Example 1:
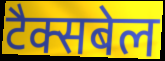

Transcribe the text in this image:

टैक्सबेल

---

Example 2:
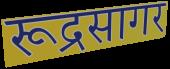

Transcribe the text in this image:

रूद्रसागर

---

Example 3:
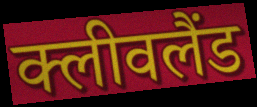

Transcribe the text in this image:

क्लीवलैंड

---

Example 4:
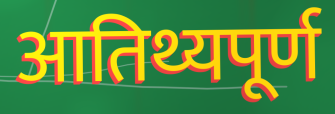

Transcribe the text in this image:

आतिथ्यपूर्ण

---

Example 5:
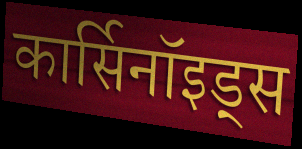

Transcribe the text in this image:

कार्सिनॉइड्स